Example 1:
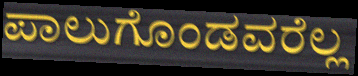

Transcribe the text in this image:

ಪಾಲುಗೊಂಡವರೆಲ್ಲ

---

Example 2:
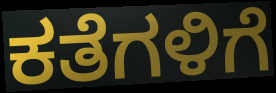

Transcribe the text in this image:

ಕತೆಗಳಿಗೆ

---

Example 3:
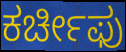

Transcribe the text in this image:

ಕರ್ಚೀಫು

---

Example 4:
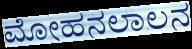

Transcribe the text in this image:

ಮೋಹನಲಾಲನ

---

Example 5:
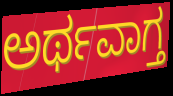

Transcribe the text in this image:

ಅರ್ಥವಾಗ್ತ